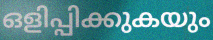
ഒളിപ്പിക്കുകയും